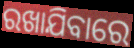
ରଖାଯିବାରେ